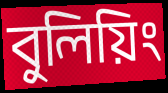
বুলিয়িং